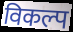
विकल्प